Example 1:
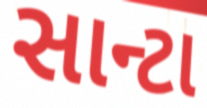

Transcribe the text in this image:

સાન્ટા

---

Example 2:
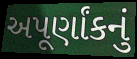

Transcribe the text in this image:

અપૂર્ણાંકનું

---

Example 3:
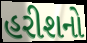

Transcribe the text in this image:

હરીશનો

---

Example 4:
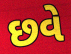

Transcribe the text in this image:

છવે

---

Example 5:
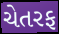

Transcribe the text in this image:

ચેતરફ